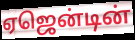
ஏஜென்டின்